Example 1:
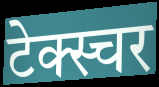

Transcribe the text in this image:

टेक्स्चर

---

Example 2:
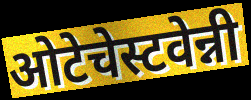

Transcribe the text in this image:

ओटेचेस्टवेन्नी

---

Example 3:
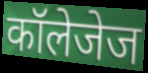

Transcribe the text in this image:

कॉलेजेज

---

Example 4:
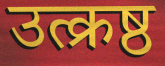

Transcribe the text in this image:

उत्क्रष्ठ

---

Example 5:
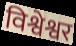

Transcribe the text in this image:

विश्वेश्वर